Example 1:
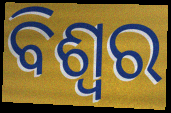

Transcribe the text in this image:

ବିଶ୍ଵର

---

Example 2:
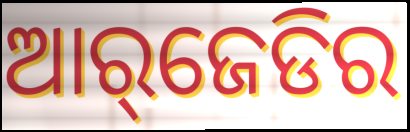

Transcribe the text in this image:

ଆର୍‌ଜେଡିର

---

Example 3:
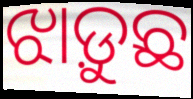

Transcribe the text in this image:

ଝାଡ଼ୁଛ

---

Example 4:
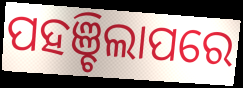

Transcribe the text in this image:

ପହଞ୍ଚିଲାପରେ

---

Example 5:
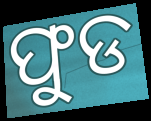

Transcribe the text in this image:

ଫୁଡ